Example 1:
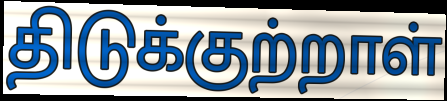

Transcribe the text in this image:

திடுக்குற்றாள்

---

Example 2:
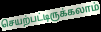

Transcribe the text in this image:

செயற்பட்டிருக்கலாம்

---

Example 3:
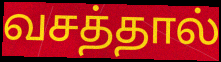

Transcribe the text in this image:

வசத்தால்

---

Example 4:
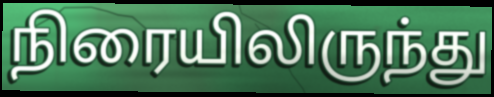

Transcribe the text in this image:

நிரையிலிருந்து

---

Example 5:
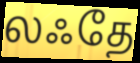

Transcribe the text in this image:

லஃதே